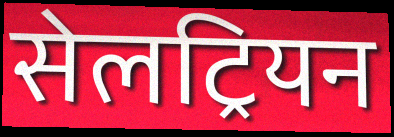
सेलट्रियन